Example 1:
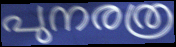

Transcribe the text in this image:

പുനരത്ര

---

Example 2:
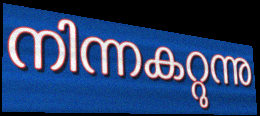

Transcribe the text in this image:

നിന്നകറ്റുന്നു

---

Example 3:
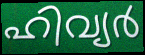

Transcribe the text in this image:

ഹിവ്യർ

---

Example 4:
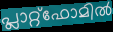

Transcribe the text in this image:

പ്ലാറ്റ്ഫോമിൽ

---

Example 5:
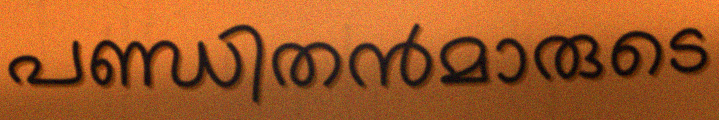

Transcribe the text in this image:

പണ്ഡിതൻമാരുടെ